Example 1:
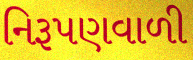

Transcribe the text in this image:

નિરૂપણવાળી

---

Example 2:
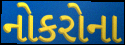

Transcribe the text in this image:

નોકરોના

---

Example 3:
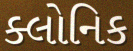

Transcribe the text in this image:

ક્લોનિક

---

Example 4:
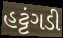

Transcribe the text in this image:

હટ્ટંગડી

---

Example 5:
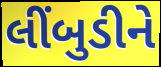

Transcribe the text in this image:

લીંબુડીને